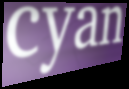
cyan